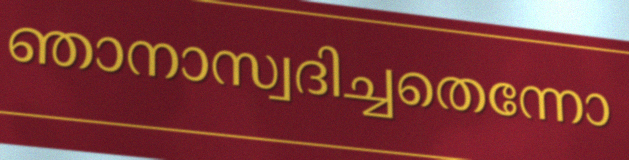
ഞാനാസ്വദിച്ചതെന്നോ